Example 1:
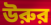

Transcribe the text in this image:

উরুর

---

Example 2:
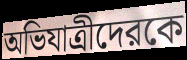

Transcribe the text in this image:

অভিযাত্রীদেরকে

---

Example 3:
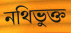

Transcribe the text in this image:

নথিভুক্ত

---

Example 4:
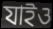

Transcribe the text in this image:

যাইও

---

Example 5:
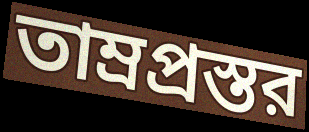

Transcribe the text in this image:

তাম্রপ্রস্তর